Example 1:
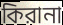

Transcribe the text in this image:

কিরানা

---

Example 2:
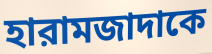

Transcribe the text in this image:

হারামজাদাকে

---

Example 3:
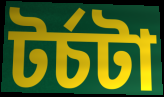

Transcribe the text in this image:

টর্চটা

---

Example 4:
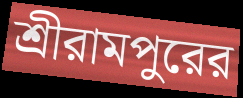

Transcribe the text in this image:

শ্রীরামপুরের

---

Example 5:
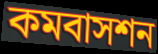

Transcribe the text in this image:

কমবাসশন